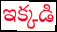
ఇక్కడి